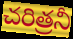
చరిత్రనీ